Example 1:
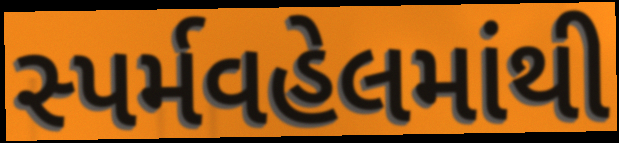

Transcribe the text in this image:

સ્પર્મવહેલમાંથી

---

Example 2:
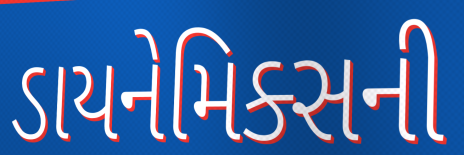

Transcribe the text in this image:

ડાયનેમિક્સની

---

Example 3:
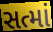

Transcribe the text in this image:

સત્માં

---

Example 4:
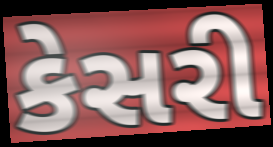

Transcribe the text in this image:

કેસરી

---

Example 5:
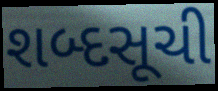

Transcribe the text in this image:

શબ્દસૂચી